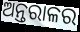
ଅନ୍ତରାଳର